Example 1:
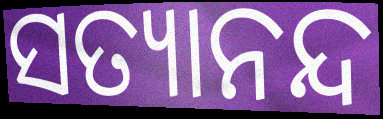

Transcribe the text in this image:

ସତ୍ୟାନନ୍ଦ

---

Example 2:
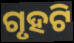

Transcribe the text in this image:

ଗୃହଟି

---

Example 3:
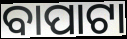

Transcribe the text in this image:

ବାପାଟା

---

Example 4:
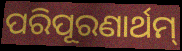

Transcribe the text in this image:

ପରିପୂରଣାର୍ଥମ୍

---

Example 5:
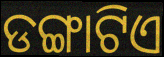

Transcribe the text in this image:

ଡଙ୍ଗାଟିଏ